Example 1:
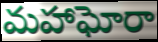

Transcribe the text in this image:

మహాఘోరా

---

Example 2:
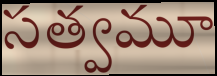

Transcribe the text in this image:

సత్వమూ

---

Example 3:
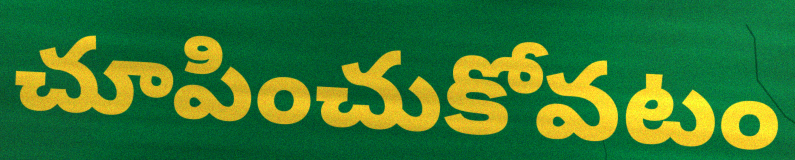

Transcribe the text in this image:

చూపించుకోవటం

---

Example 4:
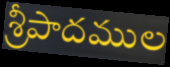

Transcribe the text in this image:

శ్రీపాదముల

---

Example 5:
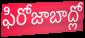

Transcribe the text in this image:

ఫిరోజాబాద్లో